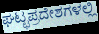
ಘಟ್ಟಪ್ರದೇಶಗಳಲ್ಲಿ